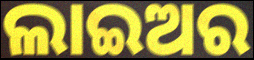
ଲାଇଅର